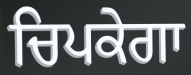
ਚਿਪਕੇਗਾ